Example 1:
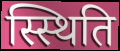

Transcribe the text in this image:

स्स्थिति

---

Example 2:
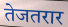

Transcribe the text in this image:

तेजतरार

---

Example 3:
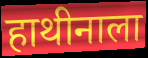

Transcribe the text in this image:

हाथीनाला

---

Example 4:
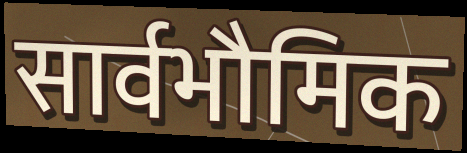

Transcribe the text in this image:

सार्वभौमिक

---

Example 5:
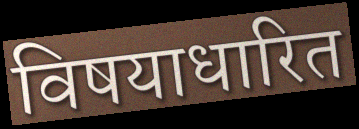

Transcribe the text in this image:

विषयाधारित